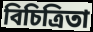
বিচিত্রিতা